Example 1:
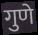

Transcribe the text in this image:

गुणे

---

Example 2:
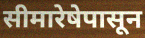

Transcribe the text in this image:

सीमारेषेपासून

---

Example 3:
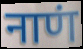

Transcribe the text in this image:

नाणं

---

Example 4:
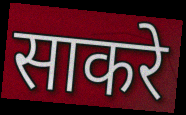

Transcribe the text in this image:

साकरे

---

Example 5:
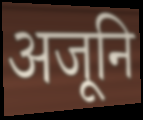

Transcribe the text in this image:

अजूनि